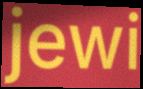
jewi